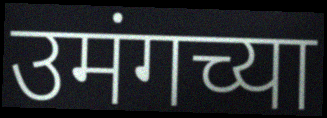
उमंगच्या